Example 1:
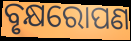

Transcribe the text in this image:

ବୃକ୍ଷରୋପଣ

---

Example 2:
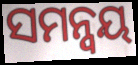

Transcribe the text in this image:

ସମନ୍ନ୍ୱୟ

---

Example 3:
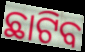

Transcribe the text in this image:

ଛାଟିବ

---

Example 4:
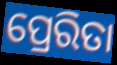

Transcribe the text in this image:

ପ୍ରେରିତା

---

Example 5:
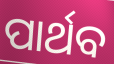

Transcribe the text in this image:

ପାର୍ଥବ